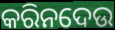
କରିନଦେଉ